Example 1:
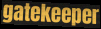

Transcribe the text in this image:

gatekeeper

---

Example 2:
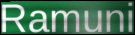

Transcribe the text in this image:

Ramuni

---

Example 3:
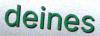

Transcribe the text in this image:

deines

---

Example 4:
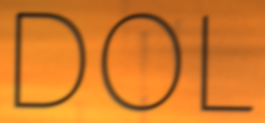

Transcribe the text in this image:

DOL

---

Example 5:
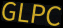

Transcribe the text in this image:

GLPC